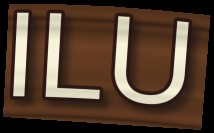
ILU